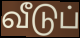
வீடுப்